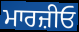
ਮਾਰਜ਼ੀਓ